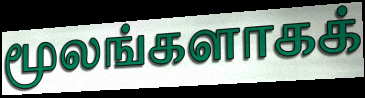
மூலங்களாகக்